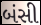
બંસી